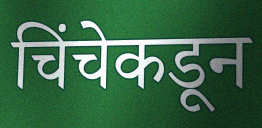
चिंचेकडून